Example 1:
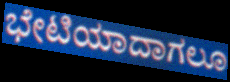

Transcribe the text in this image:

ಭೇಟಿಯಾದಾಗಲೂ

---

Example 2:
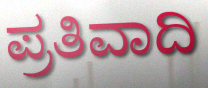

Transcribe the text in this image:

ಪ್ರತಿವಾದಿ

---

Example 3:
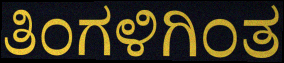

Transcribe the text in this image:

ತಿಂಗಳಿಗಿಂತ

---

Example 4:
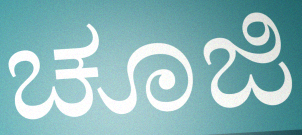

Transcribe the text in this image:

ಚೂಜಿ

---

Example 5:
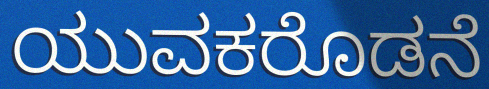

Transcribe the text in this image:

ಯುವಕರೊಡನೆ